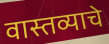
वास्तव्याचे